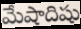
మేషాదిషు